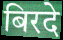
बिरदे